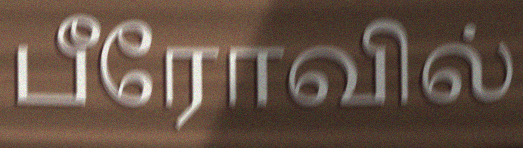
பீரோவில்